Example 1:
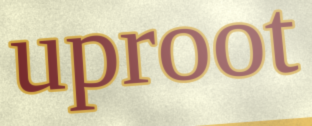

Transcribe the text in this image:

uproot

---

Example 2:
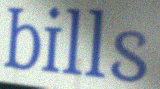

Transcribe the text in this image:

bills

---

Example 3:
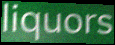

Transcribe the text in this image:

liquors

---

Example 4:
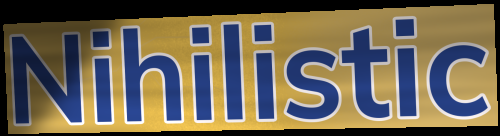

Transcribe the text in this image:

Nihilistic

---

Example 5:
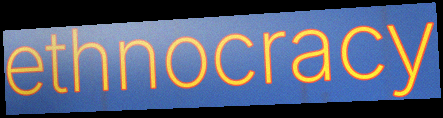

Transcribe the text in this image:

ethnocracy